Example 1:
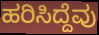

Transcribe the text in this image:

ಹರಿಸಿದ್ದೆವು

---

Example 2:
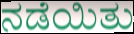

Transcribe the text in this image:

ನಡೆಯಿತು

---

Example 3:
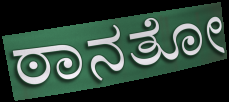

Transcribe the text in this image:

ಠಾನತೋ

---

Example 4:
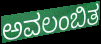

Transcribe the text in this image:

ಅವಲಂಬಿತ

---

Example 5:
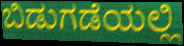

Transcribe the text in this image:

ಬಿಡುಗಡೆಯಲ್ಲಿ